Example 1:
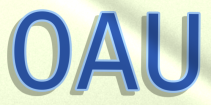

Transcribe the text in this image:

OAU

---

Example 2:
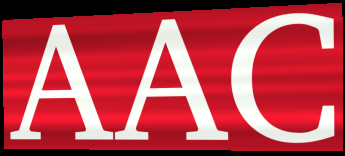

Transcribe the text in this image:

AAC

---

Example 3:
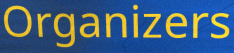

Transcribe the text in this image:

Organizers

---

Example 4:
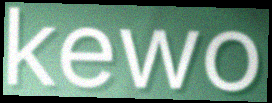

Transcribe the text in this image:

kewo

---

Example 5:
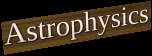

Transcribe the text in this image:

Astrophysics